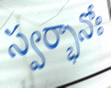
స్వర్భానోః